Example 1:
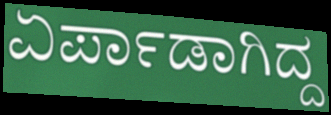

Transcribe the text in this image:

ಏರ್ಪಾಡಾಗಿದ್ದ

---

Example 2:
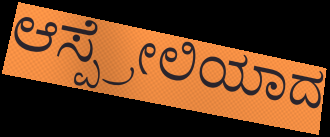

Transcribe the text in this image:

ಆಸ್ಪ್ರೇಲಿಯಾದ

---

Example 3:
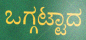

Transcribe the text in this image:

ಒಗ್ಗಟ್ಟಾದ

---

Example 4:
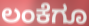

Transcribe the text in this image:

ಲಂಕೆಗೂ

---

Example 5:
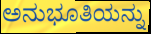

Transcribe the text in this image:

ಅನುಭೂತಿಯನ್ನು